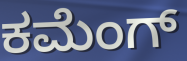
ಕಮೆಂಗ್